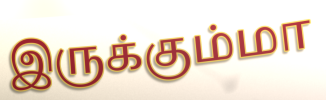
இருக்கும்மா